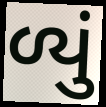
ળ્યું